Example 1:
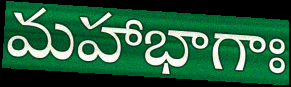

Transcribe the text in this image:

మహాభాగాః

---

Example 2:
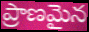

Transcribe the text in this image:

ప్రాణమైన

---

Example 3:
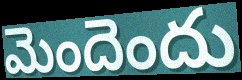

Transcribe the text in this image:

మెందెందు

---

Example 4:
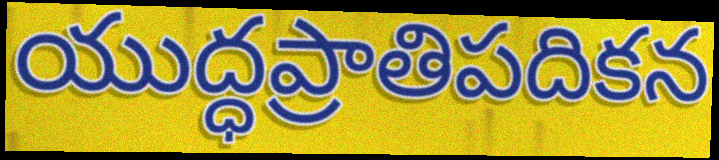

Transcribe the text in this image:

యుద్ధప్రాతిపదికన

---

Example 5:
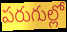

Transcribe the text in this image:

పరుగుల్లో